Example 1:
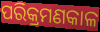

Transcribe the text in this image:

ପରିକ୍ରମଣକାଳ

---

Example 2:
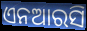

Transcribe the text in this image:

ଏନଆରସି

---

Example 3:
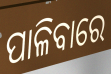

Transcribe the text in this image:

ପାଳିବାରେ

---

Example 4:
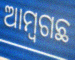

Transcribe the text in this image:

ଆମ୍ୱଗଛ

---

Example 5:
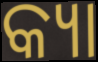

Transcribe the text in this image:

କ୍ୟା